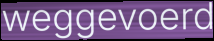
weggevoerd